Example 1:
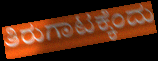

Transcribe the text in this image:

ತಿರುಗಾಟಕ್ಕೆಂದು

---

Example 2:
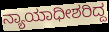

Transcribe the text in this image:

ನ್ಯಾಯಾಧೀಶರಿದ್ದ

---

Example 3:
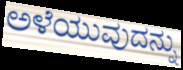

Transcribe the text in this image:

ಅಳೆಯುವುದನ್ನು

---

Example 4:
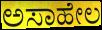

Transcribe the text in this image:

ಅಸಾಹೇಲ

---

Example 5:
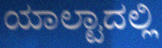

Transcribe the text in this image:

ಯಾಲ್ಟಾದಲ್ಲಿ